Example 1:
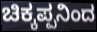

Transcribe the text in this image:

ಚಿಕ್ಕಪ್ಪನಿಂದ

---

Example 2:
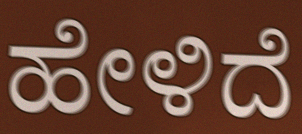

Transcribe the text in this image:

ಹೇಳಿದೆ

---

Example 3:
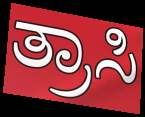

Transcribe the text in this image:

ತ್ರಾಸಿ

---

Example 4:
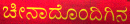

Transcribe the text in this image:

ಚೀನಾದೊಂದಿಗಿನ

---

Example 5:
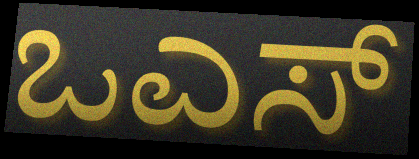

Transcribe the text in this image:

ಒಎಸ್